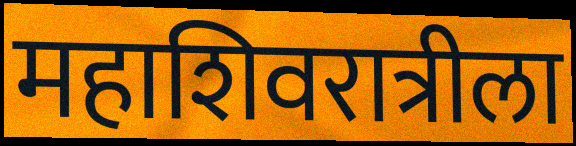
महाशिवरात्रीला